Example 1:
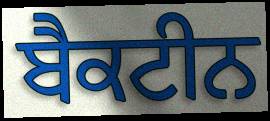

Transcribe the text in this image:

ਬੈਕਟੀਨ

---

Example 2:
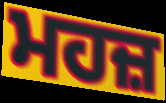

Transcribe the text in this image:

ਮਹਜ਼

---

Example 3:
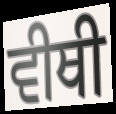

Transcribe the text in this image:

ਵੀਥੀ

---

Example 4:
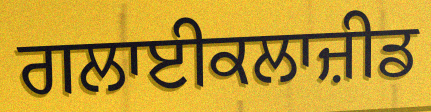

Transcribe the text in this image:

ਗਲਾਈਕਲਾਜ਼ੀਡ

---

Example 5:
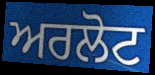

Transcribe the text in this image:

ਅਰਲੋਟ